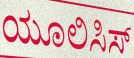
ಯೂಲಿಸಿಸ್